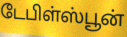
டேபிள்ஸ்பூன்